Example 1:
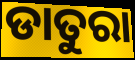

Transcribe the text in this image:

ଡାତୁରା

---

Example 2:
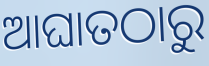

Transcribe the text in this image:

ଆଘାତଠାରୁ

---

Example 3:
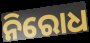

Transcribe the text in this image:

ନିରୋଧ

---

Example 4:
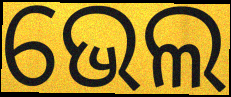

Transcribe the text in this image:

ଭେଲ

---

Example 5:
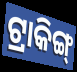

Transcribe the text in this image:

ଟ୍ରାକିଙ୍ଗ୍